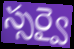
స్సర్వై